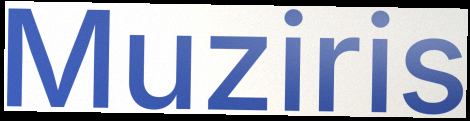
Muziris